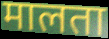
मालता